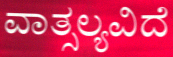
ವಾತ್ಸಲ್ಯವಿದೆ